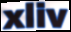
xliv